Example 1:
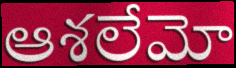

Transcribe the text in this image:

ఆశలేమో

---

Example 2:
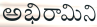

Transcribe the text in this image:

అభిరామిని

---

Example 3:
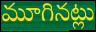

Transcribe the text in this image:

మూగినట్లు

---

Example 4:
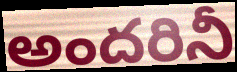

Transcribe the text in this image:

అందరినీ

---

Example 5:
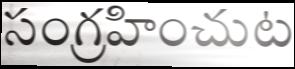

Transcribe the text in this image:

సంగ్రహించుట